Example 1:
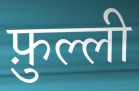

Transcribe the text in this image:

फ़ुल्ली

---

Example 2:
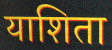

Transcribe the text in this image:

याशिता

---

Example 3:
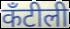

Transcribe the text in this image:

कँटीली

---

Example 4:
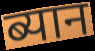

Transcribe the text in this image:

ब्यान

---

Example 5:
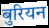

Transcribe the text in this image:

बुरियन